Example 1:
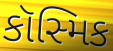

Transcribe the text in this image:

કૉસ્મિક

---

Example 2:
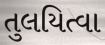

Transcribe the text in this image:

તુલયિત્વા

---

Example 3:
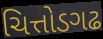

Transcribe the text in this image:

ચિત્તોડગઢ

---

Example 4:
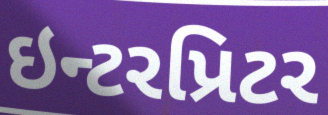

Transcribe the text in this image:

ઇન્ટરપ્રિટર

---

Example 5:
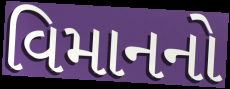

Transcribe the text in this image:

વિમાનનો